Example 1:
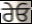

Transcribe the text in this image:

ਰੇਓ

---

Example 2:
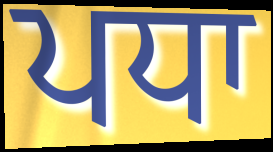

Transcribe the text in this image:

ਪਧਾ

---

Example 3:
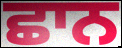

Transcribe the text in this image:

ਛਾਨ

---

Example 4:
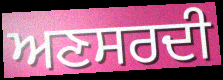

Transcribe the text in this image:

ਅਣਸਰਦੀ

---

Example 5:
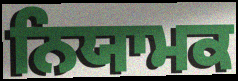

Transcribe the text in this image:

ਨਿਯਾਮਕ